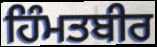
ਹਿੰਮਤਬੀਰ